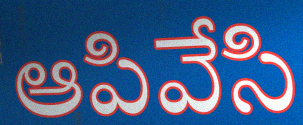
ఆపివేసి